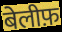
बेलीफ़